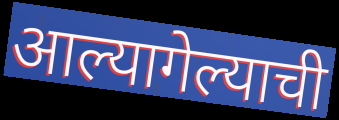
आल्यागेल्याची